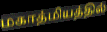
மகாத்மியத்தில்